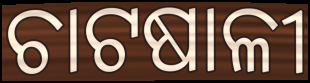
ଚାଟଷାଳୀ